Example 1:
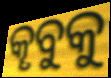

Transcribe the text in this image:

କୄବୁକୁ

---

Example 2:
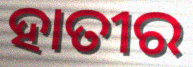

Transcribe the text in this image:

ହାତୀର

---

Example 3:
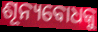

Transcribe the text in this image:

ଶୂନ୍ୟବୋଧକୁ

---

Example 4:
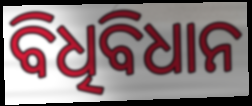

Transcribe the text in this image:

ବିଧିବିଧାନ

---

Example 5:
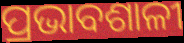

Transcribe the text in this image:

ପ୍ରଭାବଶାଳୀ